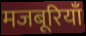
मजबूरियाँ